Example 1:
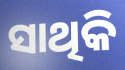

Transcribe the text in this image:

ସାଥିକି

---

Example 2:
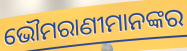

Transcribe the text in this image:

ଭୌମରାଣୀମାନଙ୍କର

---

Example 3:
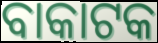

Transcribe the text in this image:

ବାକାଟକ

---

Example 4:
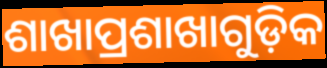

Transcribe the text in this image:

ଶାଖାପ୍ରଶାଖାଗୁଡ଼ିକ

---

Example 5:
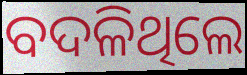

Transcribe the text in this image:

ବଦଳିଥିଲେ